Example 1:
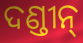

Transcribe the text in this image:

ଦଣ୍ଡୀନ୍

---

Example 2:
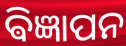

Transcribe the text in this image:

ଵିଜ୍ଞାପନ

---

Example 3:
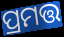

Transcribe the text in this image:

ପ୍ରମତ୍ତ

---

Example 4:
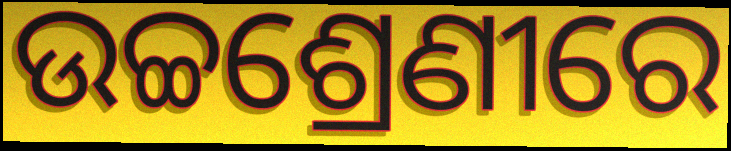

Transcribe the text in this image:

ଉଚ୍ଚଶ୍ରେଣୀରେ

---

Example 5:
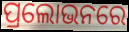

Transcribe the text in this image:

ପ୍ରଲୋଭନରେ